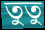
তুতু